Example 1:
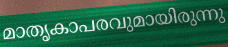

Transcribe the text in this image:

മാതൃകാപരവുമായിരുന്നു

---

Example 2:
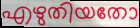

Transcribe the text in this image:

എഴുതിയതോ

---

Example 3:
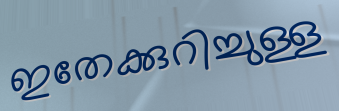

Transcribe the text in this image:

ഇതേക്കുറിച്ചുള്ള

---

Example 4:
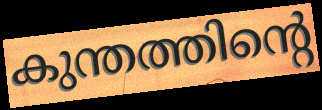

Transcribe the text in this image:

കുന്തത്തിന്റെ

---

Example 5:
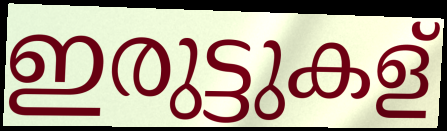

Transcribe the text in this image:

ഇരുട്ടുകള്